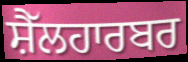
ਸ਼ੈੱਲਹਾਰਬਰ